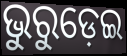
ଭୁରୁଡ଼େଇ